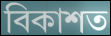
বিকাশত